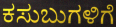
ಕಸುಬುಗಳಿಗೆ